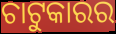
ଚାଟୁକାରର